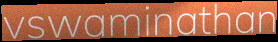
vswaminathan